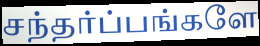
சந்தர்ப்பங்களே